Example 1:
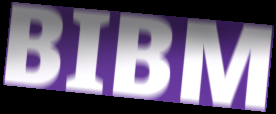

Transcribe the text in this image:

BIBM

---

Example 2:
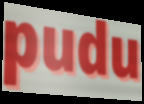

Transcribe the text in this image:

pudu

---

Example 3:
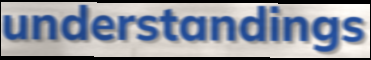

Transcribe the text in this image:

understandings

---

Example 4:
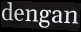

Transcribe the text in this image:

dengan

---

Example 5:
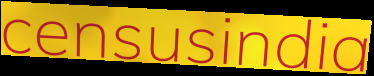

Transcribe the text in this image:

censusindia